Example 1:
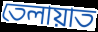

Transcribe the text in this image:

তেলায়াত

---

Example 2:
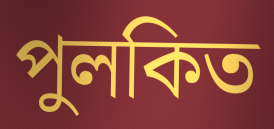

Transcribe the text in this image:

পুলকিত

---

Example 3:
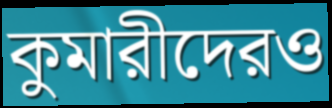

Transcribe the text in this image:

কুমারীদেরও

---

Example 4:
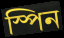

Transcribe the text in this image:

স্পিন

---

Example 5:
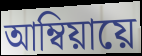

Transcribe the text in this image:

আম্বিয়ায়ে